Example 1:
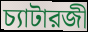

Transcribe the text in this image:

চ্যাটারজী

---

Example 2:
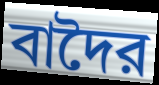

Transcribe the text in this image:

বাদৈর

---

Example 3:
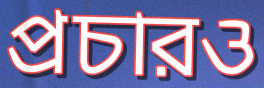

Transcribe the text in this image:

প্রচারও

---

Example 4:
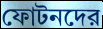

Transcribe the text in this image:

ফোটনদের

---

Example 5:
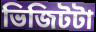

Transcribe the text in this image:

ভিজিটটা